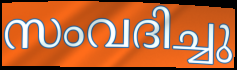
സംവദിച്ചു